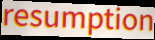
resumption